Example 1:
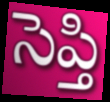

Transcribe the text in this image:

సెప్తి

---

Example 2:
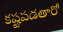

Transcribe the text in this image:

కష్టపడతారో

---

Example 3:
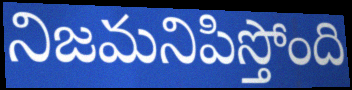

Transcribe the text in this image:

నిజమనిపిస్తోంది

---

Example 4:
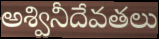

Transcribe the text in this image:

అశ్వినీదేవతలు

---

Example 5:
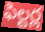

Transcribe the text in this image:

ఫిల్టర్ల